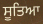
ਸੂਤਿਆ